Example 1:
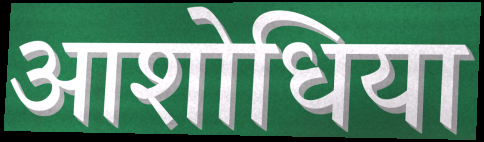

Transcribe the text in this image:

आशोधिया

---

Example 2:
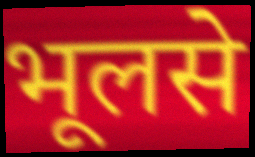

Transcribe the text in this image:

भूलसे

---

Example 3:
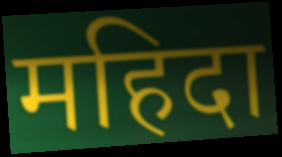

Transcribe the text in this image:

महिदा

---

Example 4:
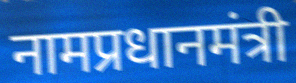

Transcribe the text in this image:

नामप्रधानमंत्री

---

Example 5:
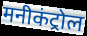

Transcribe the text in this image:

मनीकंट्रोल